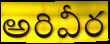
అరివీర